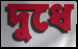
দুধে